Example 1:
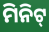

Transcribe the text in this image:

ମିନିଟ୍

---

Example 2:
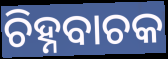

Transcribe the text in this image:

ଚିହ୍ନବାଚକ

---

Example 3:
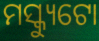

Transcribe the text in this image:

ମସ୍କ୍ୟୁଟୋ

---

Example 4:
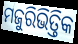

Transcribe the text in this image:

ମଜୁରିଭିତ୍ତିକ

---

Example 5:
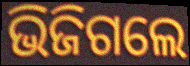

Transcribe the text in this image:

ଭିଜିଗଲେ